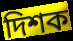
দিশক